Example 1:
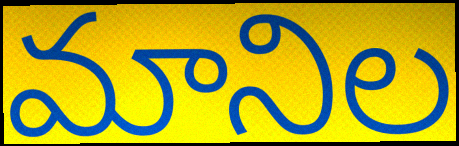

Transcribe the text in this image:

మానిల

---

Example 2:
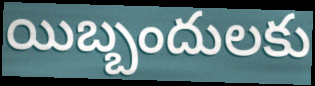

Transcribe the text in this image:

యిబ్బందులకు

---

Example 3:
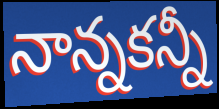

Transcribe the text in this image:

నాన్నకన్నీ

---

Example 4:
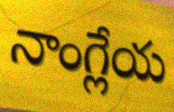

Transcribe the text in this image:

నాంగ్లేయ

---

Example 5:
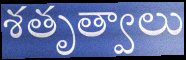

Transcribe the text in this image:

శతృత్వాలు